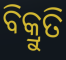
ବିକ୍ରୁତି